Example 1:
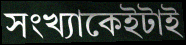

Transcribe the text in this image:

সংখ্যাকেইটাই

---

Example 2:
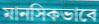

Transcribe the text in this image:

মানসিকভাবে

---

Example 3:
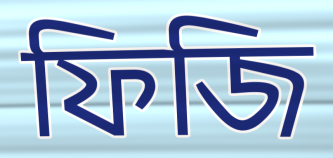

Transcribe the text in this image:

ফিজি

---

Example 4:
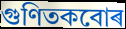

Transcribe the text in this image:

গুণিতকবোৰ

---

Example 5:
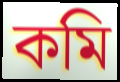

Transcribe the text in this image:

কমি